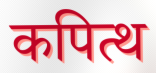
कपित्थ